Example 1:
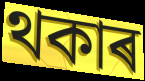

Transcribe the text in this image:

থকাৰ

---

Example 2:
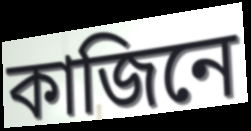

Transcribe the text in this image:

কাজিনে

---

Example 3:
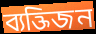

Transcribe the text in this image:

ব্যক্তিজন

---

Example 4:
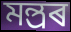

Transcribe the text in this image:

মন্ত্ৰৰ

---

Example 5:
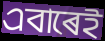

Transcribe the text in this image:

এবাৰেই